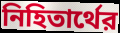
নিহিতার্থের